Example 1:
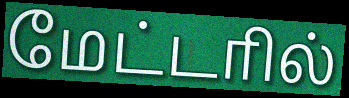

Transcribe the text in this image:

மேட்டரில்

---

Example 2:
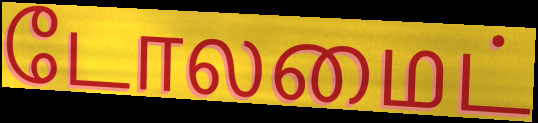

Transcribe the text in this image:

டோலமைட்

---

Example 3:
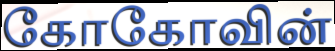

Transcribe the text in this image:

கோகோவின்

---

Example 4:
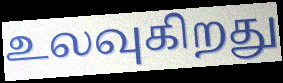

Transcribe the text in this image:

உலவுகிறது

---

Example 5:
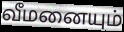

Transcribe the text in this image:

வீமனையும்